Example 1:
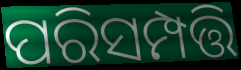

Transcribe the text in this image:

ପରିସମ୍ପତ୍ତି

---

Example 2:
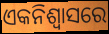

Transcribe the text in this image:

ଏକନିଶ୍ୱାସରେ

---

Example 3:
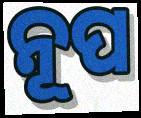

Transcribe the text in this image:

ନୂପ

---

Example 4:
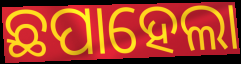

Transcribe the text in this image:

ଛପାହେଲା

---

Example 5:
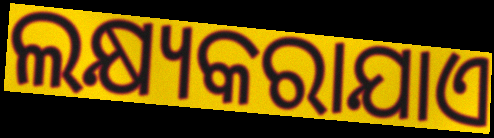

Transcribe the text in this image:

ଲକ୍ଷ୍ୟକରାଯାଏ